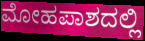
ಮೋಹಪಾಶದಲ್ಲಿ